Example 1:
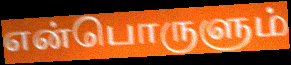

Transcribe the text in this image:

என்பொருளும்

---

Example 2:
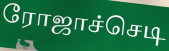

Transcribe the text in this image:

ரோஜாச்செடி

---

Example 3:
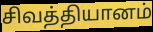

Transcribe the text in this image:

சிவத்தியானம்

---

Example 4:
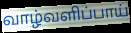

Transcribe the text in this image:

வாழ்வளிப்பாய்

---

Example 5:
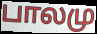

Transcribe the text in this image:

பாலமு